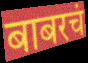
बाबरचं